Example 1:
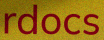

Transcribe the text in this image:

rdocs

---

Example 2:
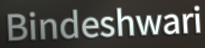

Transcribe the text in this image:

Bindeshwari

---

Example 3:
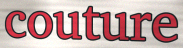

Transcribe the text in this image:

couture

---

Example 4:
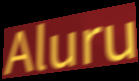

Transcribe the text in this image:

Aluru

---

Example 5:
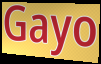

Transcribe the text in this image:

Gayo